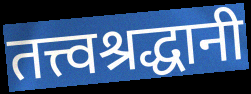
तत्त्वश्रद्धानी